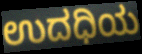
ಉದಧಿಯ